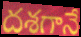
దశగానే